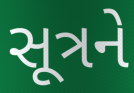
સૂત્રને